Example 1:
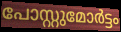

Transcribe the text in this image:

പോസ്റ്റുമോർട്ടം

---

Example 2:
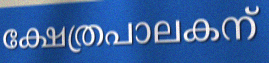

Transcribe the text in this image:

ക്ഷേത്രപാലകന്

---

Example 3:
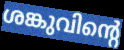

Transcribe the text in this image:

ശങ്കുവിന്റെ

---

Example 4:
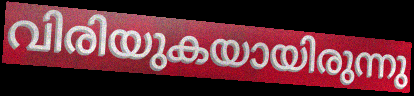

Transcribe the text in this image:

വിരിയുകയായിരുന്നു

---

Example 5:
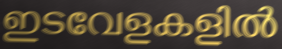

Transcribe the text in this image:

ഇടവേളകളിൽ